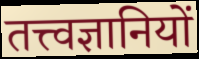
तत्त्वज्ञानियों